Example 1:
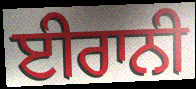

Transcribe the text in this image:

ਈਰਾਨੀ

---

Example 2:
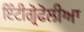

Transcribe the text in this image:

ਇੰਟੀਗ੍ਰੋਫੋਲੀਆ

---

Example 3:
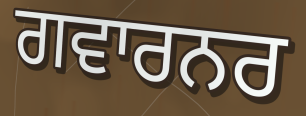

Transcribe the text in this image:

ਗਵਾਰਨਰ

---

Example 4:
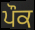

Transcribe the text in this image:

ਪੌਕ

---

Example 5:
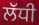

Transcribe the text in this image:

ਲੱਧੀ